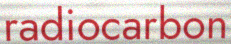
radiocarbon